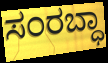
ಸಂರಬ್ಧಾ